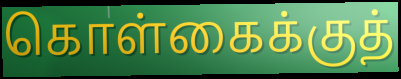
கொள்கைக்குத்